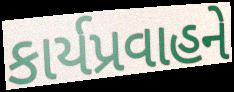
કાર્યપ્રવાહને